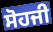
ਸੋਹਜੀ